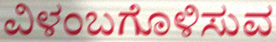
ವಿಳಂಬಗೊಳಿಸುವ